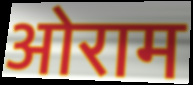
ओराम